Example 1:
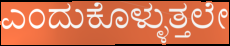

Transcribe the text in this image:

ಎಂದುಕೊಳ್ಳುತ್ತಲೇ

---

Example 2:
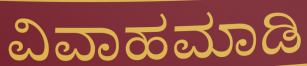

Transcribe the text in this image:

ವಿವಾಹಮಾಡಿ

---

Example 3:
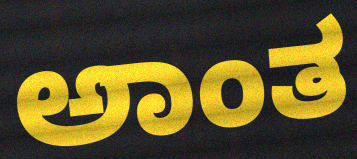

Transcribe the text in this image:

ಅಾಂತ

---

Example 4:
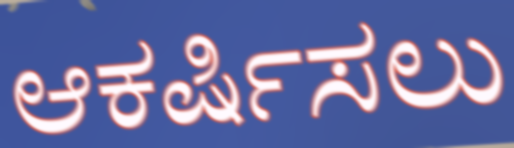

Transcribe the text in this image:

ಆಕರ್ಷಿಸಲು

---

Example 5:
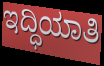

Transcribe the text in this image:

ಇದ್ಧಿಯಾತಿ